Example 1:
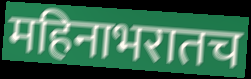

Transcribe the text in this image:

महिनाभरातच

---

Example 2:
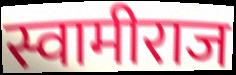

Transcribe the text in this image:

स्वामीराज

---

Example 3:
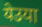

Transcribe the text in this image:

येउया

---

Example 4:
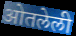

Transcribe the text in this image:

ओतलेली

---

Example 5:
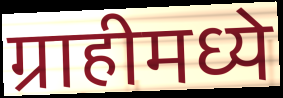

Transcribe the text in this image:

ग्राहीमध्ये